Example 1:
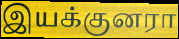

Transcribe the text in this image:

இயக்குனரா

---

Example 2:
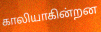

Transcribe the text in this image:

காலியாகின்றன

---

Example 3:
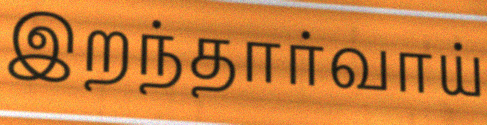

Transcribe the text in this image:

இறந்தார்வாய்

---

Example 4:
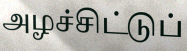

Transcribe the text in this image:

அழச்சிட்டுப்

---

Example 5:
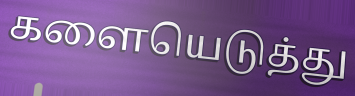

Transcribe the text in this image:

களையெடுத்து